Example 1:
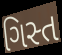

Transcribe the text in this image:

ગિસ્ત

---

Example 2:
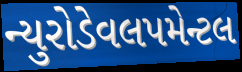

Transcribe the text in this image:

ન્યુરોડેવલપમેન્ટલ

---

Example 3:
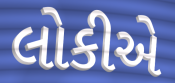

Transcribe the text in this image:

લોકીએ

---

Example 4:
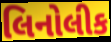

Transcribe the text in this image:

લિનોલીક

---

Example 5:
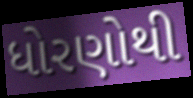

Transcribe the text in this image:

ધોરણોથી